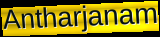
Antharjanam